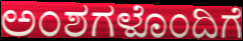
ಅಂಶಗಳೊಂದಿಗೆ